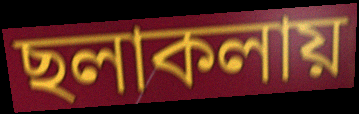
ছলাকলায়